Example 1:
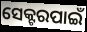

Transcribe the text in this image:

ସେକ୍ଟରପାଇଁ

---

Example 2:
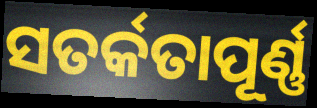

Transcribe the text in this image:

ସତର୍କତାପୂର୍ଣ୍ଣ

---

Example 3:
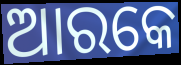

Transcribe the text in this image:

ଆରକେ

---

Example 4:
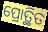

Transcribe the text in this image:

ପ୍ରୋତ୍ଥିତ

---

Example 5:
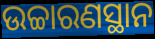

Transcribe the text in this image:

ଉଚ୍ଚାରଣସ୍ଥାନ